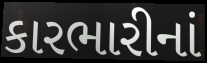
કારભારીનાં